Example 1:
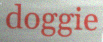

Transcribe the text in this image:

doggie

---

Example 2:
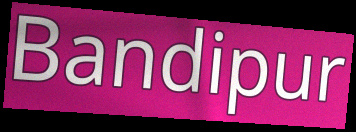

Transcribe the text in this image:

Bandipur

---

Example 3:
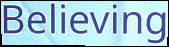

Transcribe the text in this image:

Believing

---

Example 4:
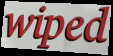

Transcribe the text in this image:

wiped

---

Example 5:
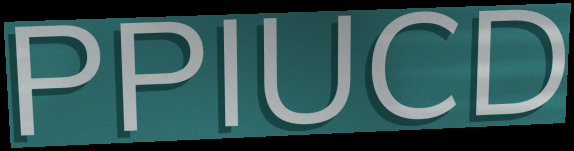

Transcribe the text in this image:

PPIUCD